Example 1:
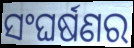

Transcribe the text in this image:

ସଂଘର୍ଷଣର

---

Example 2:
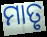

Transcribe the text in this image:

ମାତୃ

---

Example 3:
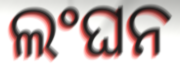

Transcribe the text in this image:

ଲଂଘନ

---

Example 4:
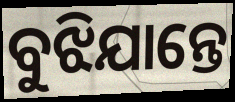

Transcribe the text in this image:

ବୁଝିଯାନ୍ତେ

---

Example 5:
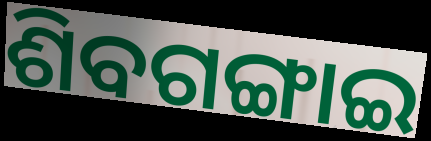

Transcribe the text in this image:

ଶିବଗଙ୍ଗାଇ